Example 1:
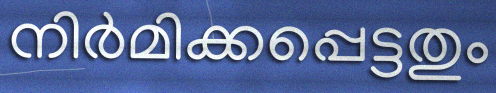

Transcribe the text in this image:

നിർമിക്കപ്പെട്ടതും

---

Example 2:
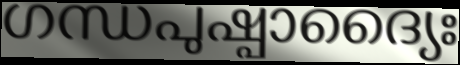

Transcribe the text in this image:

ഗന്ധപുഷ്പാദ്യൈഃ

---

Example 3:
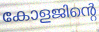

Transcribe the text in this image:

കോളജിന്റെ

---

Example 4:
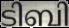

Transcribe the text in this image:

ടിബി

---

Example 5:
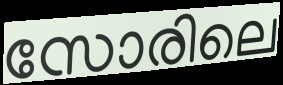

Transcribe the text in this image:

സോരിലെ